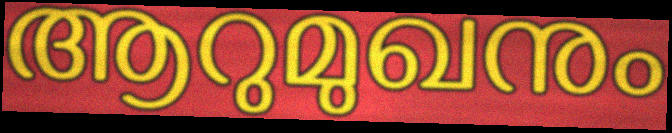
ആറുമുഖനും